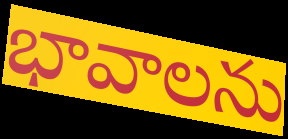
భావాలను